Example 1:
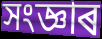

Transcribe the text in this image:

সংজ্ঞাৰ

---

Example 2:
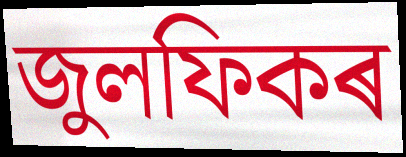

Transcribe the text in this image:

জুলফিকৰ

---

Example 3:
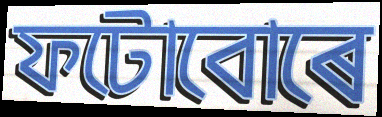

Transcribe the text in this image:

ফটোবোৰে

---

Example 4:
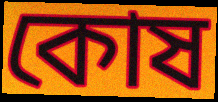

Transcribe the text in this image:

কোষ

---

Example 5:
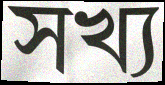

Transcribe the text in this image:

সখ্য